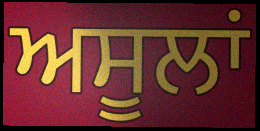
ਅਸੂਲਾਂ